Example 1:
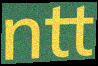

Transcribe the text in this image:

ntt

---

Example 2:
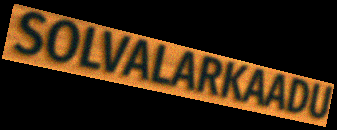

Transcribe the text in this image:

SOLVALARKAADU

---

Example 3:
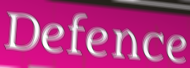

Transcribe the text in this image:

Defence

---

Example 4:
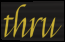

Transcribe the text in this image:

thru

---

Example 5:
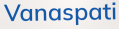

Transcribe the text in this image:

Vanaspati